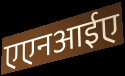
एएनआईए